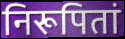
निरूपितां